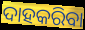
ଦାହକରିବା